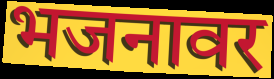
भजनावर